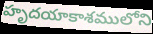
హృదయాకాశములోని